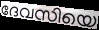
ദേവസിയെ